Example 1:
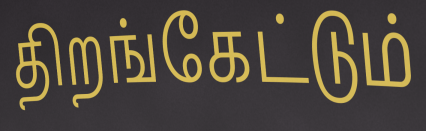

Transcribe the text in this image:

திறங்கேட்டும்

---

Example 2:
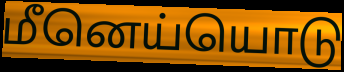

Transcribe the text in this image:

மீனெய்யொடு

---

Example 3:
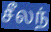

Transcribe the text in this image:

சீலந்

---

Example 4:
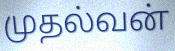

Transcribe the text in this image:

முதல்வன்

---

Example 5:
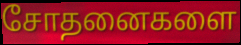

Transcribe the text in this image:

சோதனைகளை